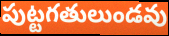
పుట్టగతులుండవు